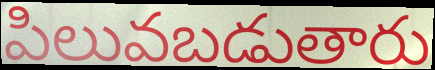
పిలువబడుతారు